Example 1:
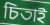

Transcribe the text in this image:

চিতাই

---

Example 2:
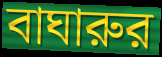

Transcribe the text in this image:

বাঘারুর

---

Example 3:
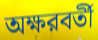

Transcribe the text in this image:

অক্ষরবর্তী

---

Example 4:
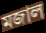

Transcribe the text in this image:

মজাল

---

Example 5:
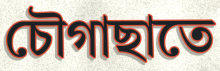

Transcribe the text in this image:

চৌগাছাতে